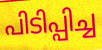
പിടിപ്പിച്ച